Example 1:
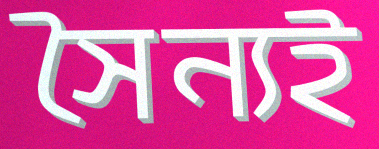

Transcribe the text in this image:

সৈন্যই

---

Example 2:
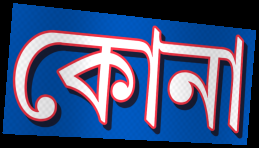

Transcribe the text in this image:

কোনা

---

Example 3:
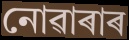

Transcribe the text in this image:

নোৱাৰাৰ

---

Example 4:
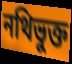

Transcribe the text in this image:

নথিভুক্ত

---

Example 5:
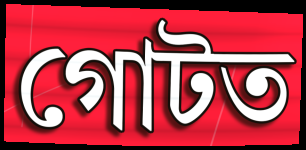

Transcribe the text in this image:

গোটত